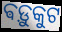
ଵଡ଼ୁକୁଟ